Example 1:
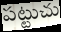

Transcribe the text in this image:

పట్టుచు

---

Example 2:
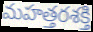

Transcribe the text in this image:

మహత్తరశక్తి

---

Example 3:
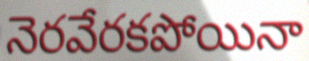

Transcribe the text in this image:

నెరవేరకపోయినా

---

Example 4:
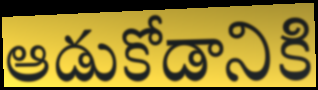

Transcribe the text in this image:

ఆడుకోడానికి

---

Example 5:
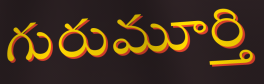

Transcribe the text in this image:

గురుమూర్తి